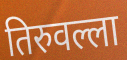
तिरुवल्ला